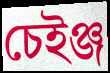
চেইঞ্জ